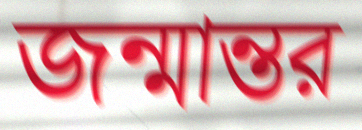
জন্মান্তর